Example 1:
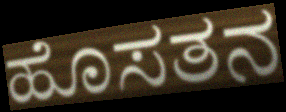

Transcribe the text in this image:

ಹೊಸತನ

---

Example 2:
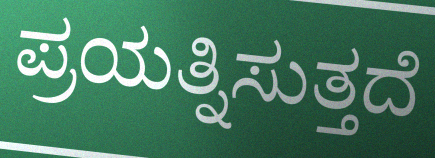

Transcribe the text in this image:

ಪ್ರಯತ್ನಿಸುತ್ತದೆ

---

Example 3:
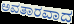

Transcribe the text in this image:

ಅವತಾರವಾದ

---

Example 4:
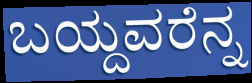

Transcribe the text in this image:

ಬಯ್ದವರೆನ್ನ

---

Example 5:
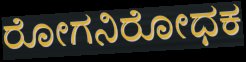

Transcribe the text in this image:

ರೋಗನಿರೋಧಕ